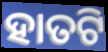
ହାତଟି